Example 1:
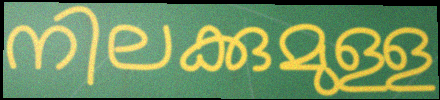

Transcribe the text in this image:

നിലക്കുമുള്ള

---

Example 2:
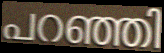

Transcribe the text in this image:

പറഞ്ഞി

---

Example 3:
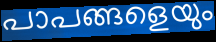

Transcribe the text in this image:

പാപങ്ങളെയും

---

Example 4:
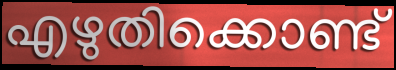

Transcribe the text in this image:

എഴുതിക്കൊണ്ട്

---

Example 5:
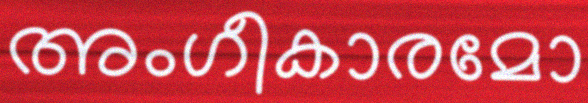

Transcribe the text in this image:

അംഗീകാരമോ